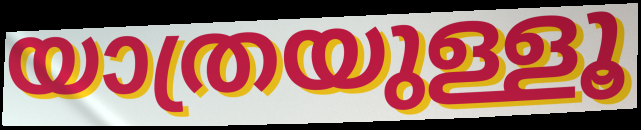
യാത്രയുള്ളൂ